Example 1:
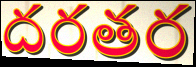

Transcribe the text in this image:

దరతర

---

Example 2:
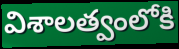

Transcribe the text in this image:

విశాలత్వంలోకి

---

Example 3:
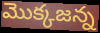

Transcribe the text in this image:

మొక్కజన్న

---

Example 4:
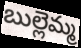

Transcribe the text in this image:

బుల్లెమ్మ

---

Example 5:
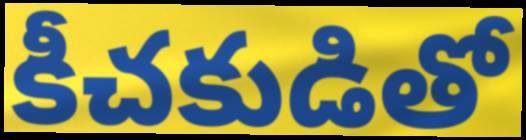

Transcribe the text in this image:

కీచకుడితో